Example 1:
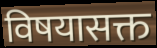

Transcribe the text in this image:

विषयासक्त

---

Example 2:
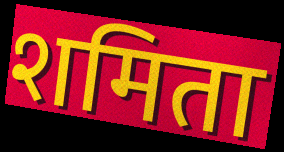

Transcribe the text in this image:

शमिता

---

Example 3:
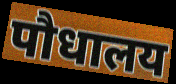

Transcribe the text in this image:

पौधालय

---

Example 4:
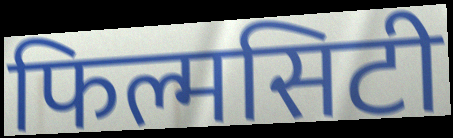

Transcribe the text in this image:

फिल्मसिटी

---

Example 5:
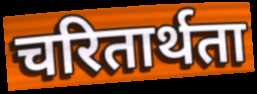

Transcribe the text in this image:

चरितार्थता